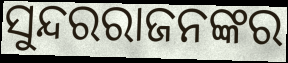
ସୁନ୍ଦରରାଜନଙ୍କର